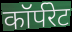
कॉर्परेट